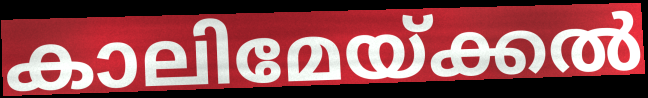
കാലിമേയ്ക്കൽ